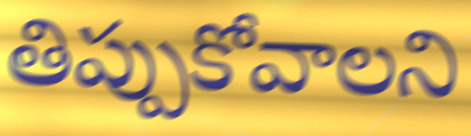
తిప్పుకోవాలని